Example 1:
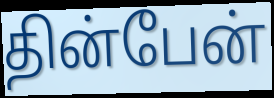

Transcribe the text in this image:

தின்பேன்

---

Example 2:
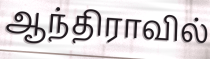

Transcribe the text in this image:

ஆந்திராவில்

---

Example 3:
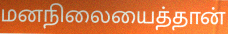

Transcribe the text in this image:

மனநிலையைத்தான்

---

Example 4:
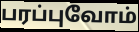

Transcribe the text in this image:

பரப்புவோம்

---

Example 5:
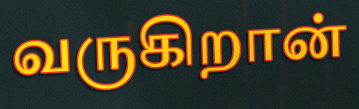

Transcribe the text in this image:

வருகிறான்